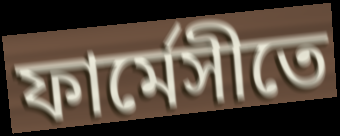
ফার্মেসীতে